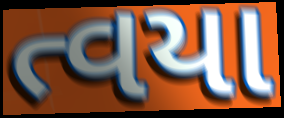
ત્વયા